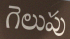
గెలుపు